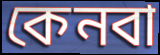
কেনবা